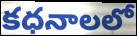
కధనాలలో